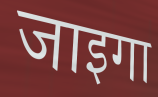
जाइगा